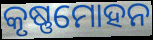
କୃଷ୍ଣମୋହନ